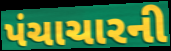
પંચાચારની